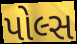
પોલ્સ